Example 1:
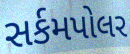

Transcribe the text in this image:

સર્કમપોલર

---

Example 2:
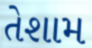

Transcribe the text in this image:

તેશામ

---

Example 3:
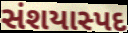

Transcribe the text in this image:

સંશયાસ્પદ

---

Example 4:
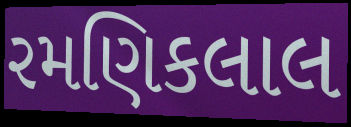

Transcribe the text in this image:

રમણિકલાલ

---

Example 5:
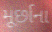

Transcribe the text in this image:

મૂર્છાના